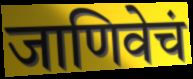
जाणिवेचं